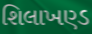
શિલાખણ્ડ